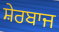
ਸ਼ੇਰਬਾਜ